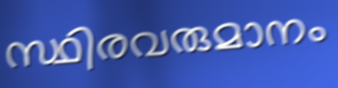
സ്ഥിരവരുമാനം